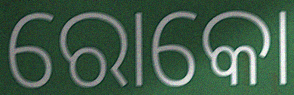
ରୋକୋ